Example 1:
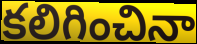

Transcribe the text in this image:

కలిగించినా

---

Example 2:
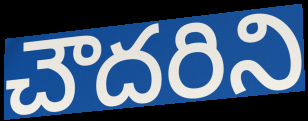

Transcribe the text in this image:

చౌదరిని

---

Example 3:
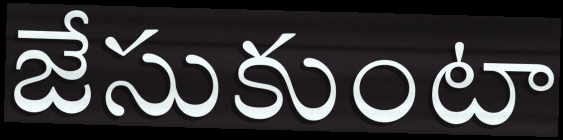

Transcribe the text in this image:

జేసుకుంటా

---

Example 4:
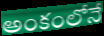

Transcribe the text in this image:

అంకంలోనే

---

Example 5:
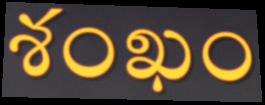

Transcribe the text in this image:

శంఖం